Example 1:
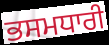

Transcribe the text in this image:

ਭਸਮਧਾਰੀ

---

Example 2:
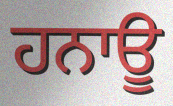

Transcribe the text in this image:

ਹਨਾਊ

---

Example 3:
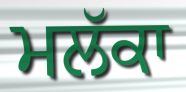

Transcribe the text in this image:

ਮਲੱਕਾ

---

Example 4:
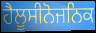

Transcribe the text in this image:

ਹੈਲੂਸੀਨੋਜਨਿਕ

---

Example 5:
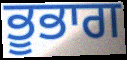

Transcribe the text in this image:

ਭੂਭਾਗ